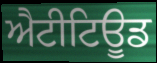
ਐਟੀਟਿਊਡ